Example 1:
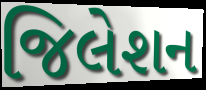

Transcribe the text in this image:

જિલેશન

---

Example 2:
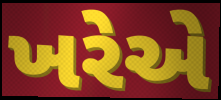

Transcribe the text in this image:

ખરેએ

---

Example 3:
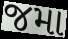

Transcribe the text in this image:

જમા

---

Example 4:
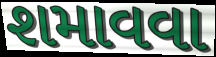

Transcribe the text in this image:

શમાવવા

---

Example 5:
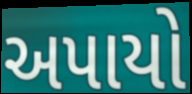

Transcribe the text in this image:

અપાયો